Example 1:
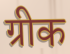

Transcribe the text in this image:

ग्रीक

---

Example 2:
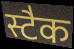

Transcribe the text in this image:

स्टैक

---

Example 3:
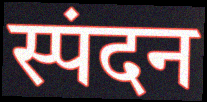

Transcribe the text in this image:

स्पंदन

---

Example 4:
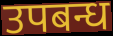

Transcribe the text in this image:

उपबन्ध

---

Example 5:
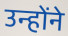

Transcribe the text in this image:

उन्होंने